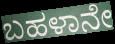
ಬಹಳಾನೇ